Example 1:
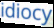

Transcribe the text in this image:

idiocy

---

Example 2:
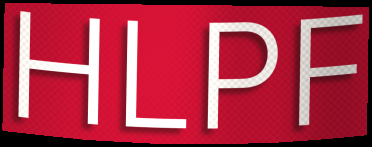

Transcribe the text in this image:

HLPF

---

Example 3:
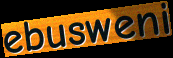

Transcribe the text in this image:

ebusweni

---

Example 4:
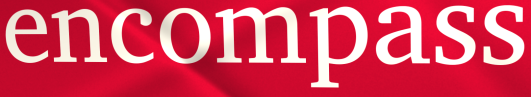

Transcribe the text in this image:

encompass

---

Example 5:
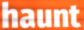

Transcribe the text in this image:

haunt